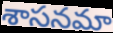
శాసనమా